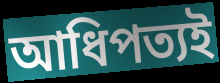
আধিপত্যই